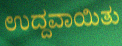
ಉದ್ದವಾಯಿತು